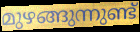
മുഴങ്ങുന്നുണ്ട്